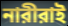
নারীরাই